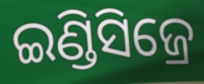
ଇଣ୍ଡିସିଜ୍ରେ